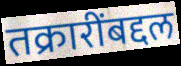
तक्रारींबद्दल